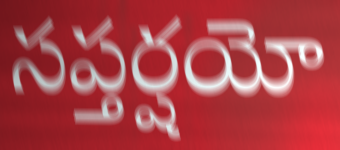
సప్తర్షయో